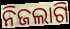
ନିଜଲାଗି